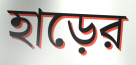
হাড়ের